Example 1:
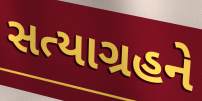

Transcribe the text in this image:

સત્યાગ્રહને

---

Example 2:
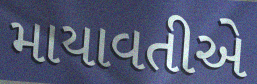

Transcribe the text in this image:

માયાવતીએ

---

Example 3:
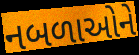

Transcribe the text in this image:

નબળાઓને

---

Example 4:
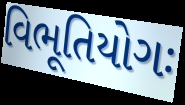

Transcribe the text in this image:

વિભૂતિયોગઃ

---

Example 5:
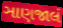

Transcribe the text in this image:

ઞાણજાલં